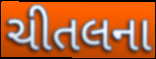
ચીતલના